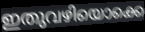
ഇതുവഴിയൊക്കെ